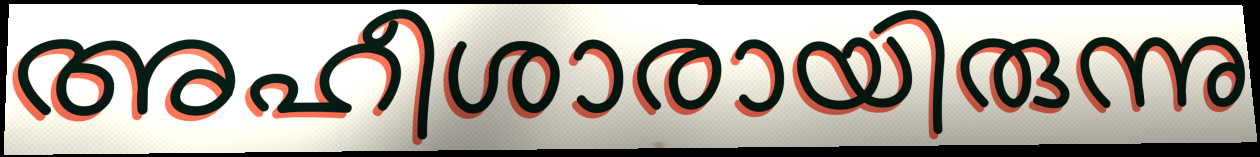
അഹീശാരായിരുന്നു